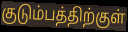
குடும்பத்திற்குள்